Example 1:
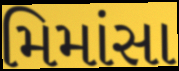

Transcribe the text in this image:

મિમાંસા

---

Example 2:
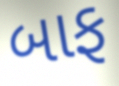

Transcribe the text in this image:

બાફ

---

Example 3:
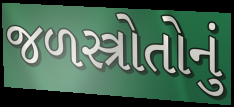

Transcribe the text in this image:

જળસ્ત્રોતોનું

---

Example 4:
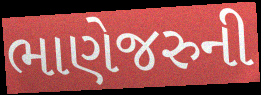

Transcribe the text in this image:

ભાણેજરુની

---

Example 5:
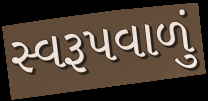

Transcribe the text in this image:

સ્વરૂપવાળું